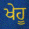
ਖੇਹੂ